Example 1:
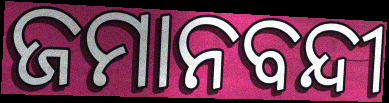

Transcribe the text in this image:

ଜମାନବନ୍ଦୀ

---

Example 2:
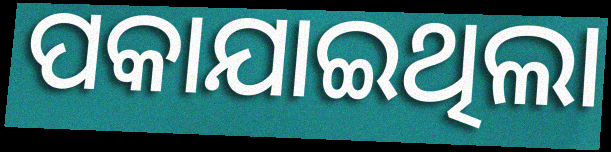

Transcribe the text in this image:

ପକାଯାଇଥିଲା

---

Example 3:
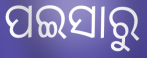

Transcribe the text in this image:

ପଇସାରୁ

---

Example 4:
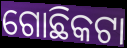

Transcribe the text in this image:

ଗୋଛିକଟା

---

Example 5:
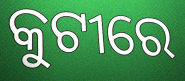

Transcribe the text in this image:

କୁଟୀରେ